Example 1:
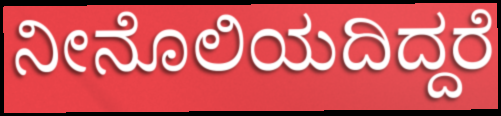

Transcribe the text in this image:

ನೀನೊಲಿಯದಿದ್ದರೆ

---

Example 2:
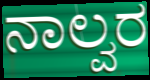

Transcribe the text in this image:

ನಾಲ್ವರ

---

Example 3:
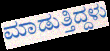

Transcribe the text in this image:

ಮಾಡುತ್ತಿದ್ದಳು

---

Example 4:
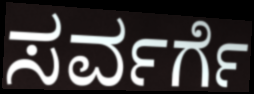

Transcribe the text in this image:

ಸರ್ವರ್ಗೆ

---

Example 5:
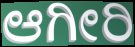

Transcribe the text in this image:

ಆಗೀರಿ